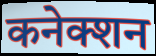
कनेक्शन